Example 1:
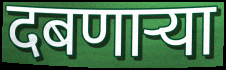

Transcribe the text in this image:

दबणाऱ्या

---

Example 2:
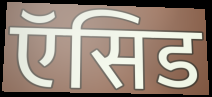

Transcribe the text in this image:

ऍसिड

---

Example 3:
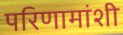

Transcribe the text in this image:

परिणामांशी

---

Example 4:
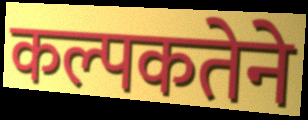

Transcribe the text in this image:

कल्पकतेने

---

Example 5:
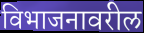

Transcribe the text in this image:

विभाजनावरील